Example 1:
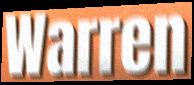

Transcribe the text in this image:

Warren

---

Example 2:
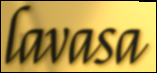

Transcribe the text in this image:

lavasa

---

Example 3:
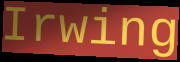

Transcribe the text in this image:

Irwing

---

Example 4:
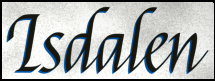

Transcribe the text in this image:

Isdalen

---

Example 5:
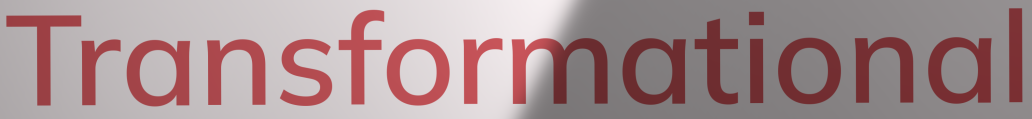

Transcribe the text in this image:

Transformational